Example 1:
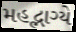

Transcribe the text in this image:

મહદ્ભાગ્યે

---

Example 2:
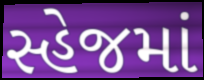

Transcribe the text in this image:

સ્હેજમાં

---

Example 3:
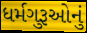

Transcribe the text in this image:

ધર્મગુરૂઓનું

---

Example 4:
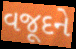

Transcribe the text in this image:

વજૂદને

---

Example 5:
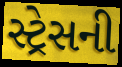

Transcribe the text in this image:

સ્ટ્રેસની